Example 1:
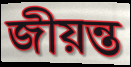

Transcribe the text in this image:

জীয়ন্ত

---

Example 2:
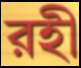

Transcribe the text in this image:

রহী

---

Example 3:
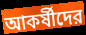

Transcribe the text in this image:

আকর্ষীদের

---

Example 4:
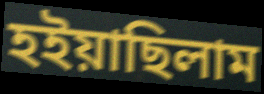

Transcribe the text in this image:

হইয়াছিলাম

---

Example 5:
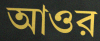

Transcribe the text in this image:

আওর